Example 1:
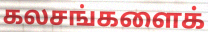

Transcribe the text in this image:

கலசங்களைக்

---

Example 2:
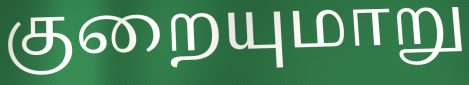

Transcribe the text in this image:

குறையுமாறு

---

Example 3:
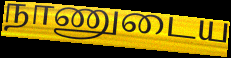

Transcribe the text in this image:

நாணுடைய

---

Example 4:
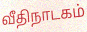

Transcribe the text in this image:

வீதிநாடகம்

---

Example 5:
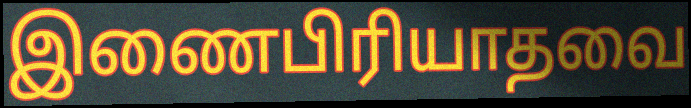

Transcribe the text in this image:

இணைபிரியாதவை